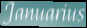
Januarius